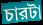
চারটা